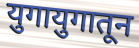
युगायुगातून